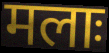
मलाः